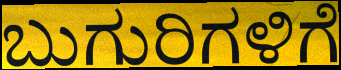
ಬುಗುರಿಗಳಿಗೆ